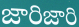
జారిజారి